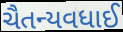
ચૈતન્યવધાઈ